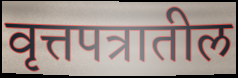
वृत्तपत्रातील